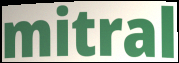
mitral